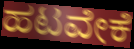
ಹಟವೇಕೆ